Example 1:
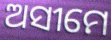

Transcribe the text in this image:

ଅସୀମେ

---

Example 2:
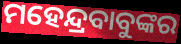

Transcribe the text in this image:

ମହେନ୍ଦ୍ରବାବୁଙ୍କର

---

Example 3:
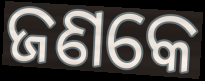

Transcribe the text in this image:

ଜଣକେ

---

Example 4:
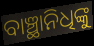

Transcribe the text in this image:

ବାଞ୍ଛାନିଧିଙ୍କୁ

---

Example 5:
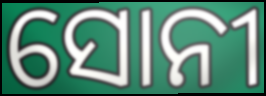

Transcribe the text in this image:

ସୋନୀ